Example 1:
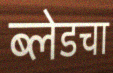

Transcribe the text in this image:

ब्लेडचा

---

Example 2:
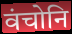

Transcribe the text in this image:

वंचोनि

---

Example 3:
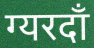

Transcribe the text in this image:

ग्यरदाँ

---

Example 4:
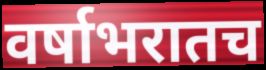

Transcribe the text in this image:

वर्षाभरातच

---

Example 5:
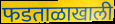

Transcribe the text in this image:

फडताळाखाली